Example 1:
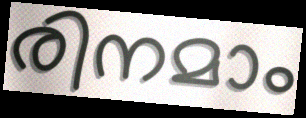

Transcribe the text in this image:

രിനമാം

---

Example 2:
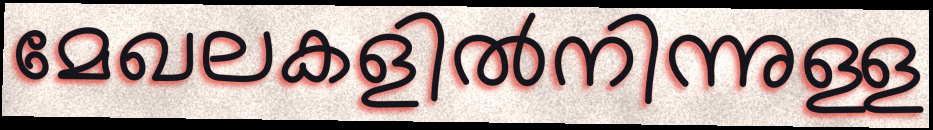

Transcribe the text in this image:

മേഖലകളിൽനിന്നുള്ള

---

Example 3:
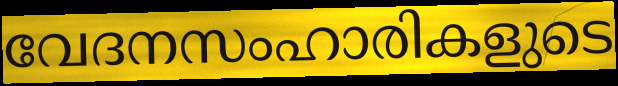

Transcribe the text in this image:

വേദനസംഹാരികളുടെ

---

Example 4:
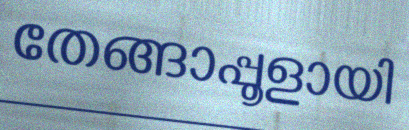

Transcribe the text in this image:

തേങ്ങാപ്പൂളായി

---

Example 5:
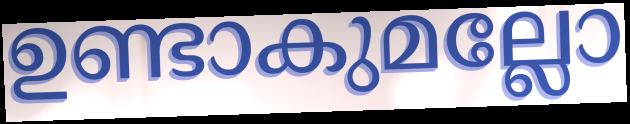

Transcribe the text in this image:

ഉണ്ടാകുമല്ലോ